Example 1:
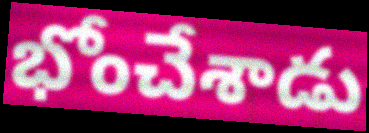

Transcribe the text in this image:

భోంచేశాడు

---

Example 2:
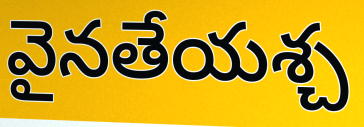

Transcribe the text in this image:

వైనతేయశ్చ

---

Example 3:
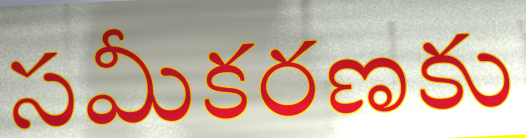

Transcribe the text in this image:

సమీకరణకు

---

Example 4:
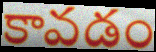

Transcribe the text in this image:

కావడం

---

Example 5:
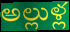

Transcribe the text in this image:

అల్లుళ్ల